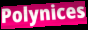
Polynices